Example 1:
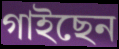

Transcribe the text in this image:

গাইছেন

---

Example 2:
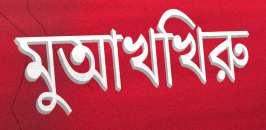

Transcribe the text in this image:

মুআখখিরু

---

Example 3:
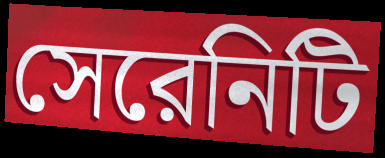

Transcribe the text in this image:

সেরেনিটি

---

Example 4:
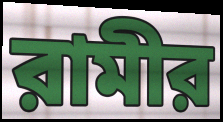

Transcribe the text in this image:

রামীর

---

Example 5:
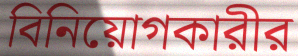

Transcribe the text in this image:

বিনিয়োগকারীর